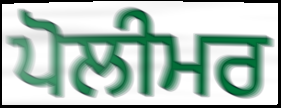
ਪੋਲੀਮਰ